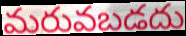
మరువబడదు